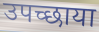
उपच्छाया